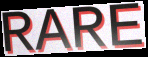
RARE